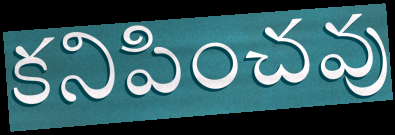
కనిపించవు